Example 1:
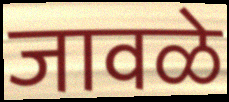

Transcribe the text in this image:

जावळे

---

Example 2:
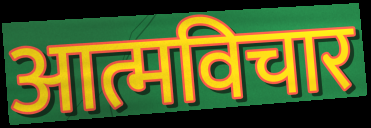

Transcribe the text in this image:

आत्मविचार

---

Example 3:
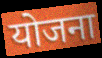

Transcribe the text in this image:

योजना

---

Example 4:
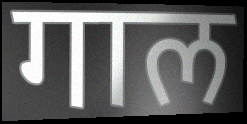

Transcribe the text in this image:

गाल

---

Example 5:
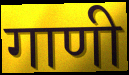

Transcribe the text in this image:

गाणी